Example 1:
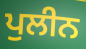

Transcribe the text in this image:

ਪੁਲੀਨ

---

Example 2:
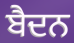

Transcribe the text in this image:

ਬੈਦਨ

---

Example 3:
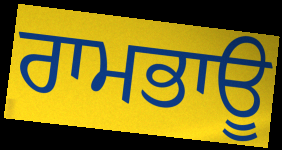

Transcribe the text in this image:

ਰਾਮਭਾਊ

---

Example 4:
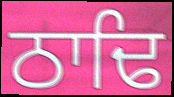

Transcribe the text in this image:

ਠਾਢਿ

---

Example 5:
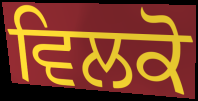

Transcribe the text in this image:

ਵਿਲਕੋ